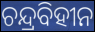
ଚନ୍ଦ୍ରବିହୀନ